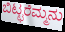
ಬಿಟ್ಟರೆಮ್ಮನು